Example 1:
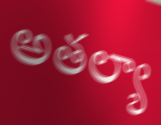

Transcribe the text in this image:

అతల్యా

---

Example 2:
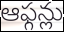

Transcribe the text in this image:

ఆఫ్గన్లు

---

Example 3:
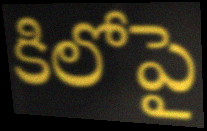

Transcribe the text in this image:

కిలోపై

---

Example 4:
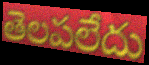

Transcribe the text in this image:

తెలపలేదు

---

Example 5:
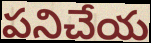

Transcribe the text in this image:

పనిచేయ